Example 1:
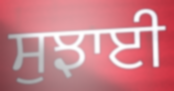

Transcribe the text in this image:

ਸੁਝਾਈ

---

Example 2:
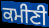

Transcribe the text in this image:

ਕਮੀਣੀ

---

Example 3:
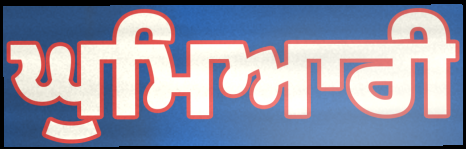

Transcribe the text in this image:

ਘੁਮਿਆਰੀ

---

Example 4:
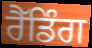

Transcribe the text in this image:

ਰੈੱਡਿੰਗ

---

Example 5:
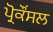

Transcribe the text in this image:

ਪ੍ਰੋਕੌਂਸਲ